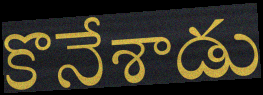
కొనేశాడు